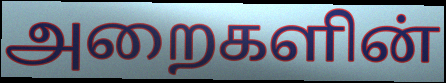
அறைகளின்